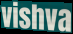
vishva